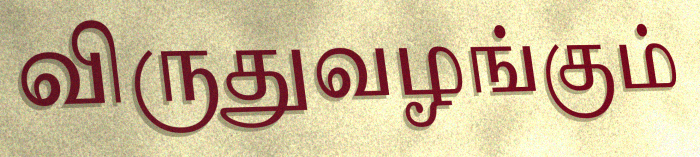
விருதுவழங்கும்